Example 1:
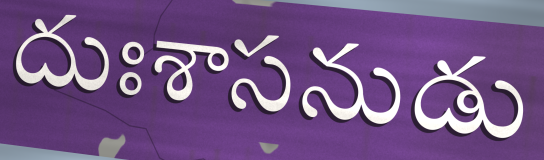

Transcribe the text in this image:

దుఃశాసనుడు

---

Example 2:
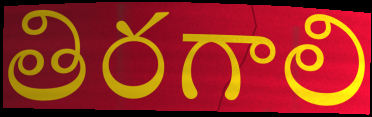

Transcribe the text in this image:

తిరగాలి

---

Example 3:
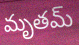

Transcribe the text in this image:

మృతమ్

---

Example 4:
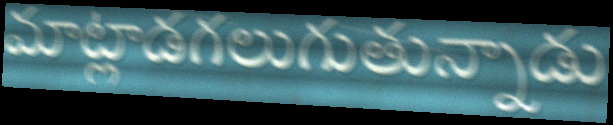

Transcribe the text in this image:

మాట్లాడగలుగుతున్నాడు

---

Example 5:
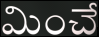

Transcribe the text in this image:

మించే